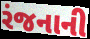
રંજનાની